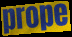
prope